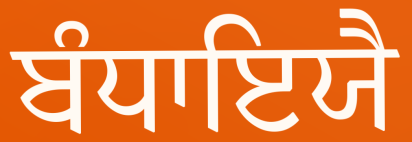
ਬੰਧਾਇਯੈ